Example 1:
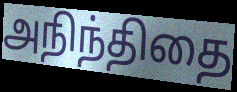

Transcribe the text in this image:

அநிந்திதை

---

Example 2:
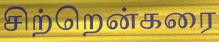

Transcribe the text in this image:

சிற்றென்கரை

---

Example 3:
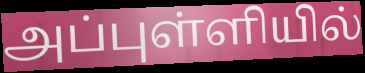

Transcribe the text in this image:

அப்புள்ளியில்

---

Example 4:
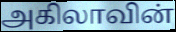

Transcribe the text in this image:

அகிலாவின்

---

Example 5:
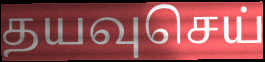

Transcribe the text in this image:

தயவுசெய்